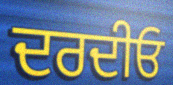
ਦਰਦੀਓ